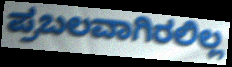
ಪ್ರಬಲವಾಗಿರಲಿಲ್ಲ